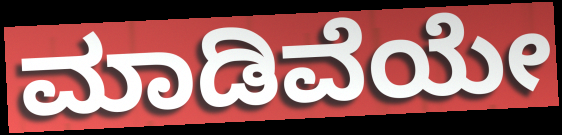
ಮಾಡಿವೆಯೇ